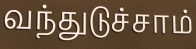
வந்துடுச்சாம்